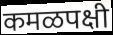
कमळपक्षी